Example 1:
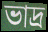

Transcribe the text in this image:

ভাদ্র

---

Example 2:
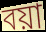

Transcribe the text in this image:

বয়া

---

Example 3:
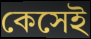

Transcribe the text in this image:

কেসেই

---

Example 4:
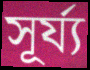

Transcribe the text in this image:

সূর্য্য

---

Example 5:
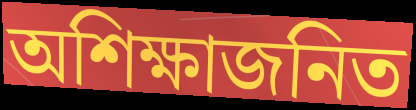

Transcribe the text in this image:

অশিক্ষাজনিত